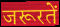
जरूरतें